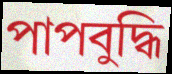
পাপবুদ্ধি